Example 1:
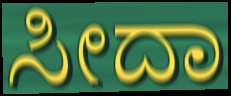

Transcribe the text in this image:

ಸೀದಾ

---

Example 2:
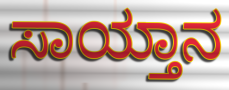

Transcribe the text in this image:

ಸಾಯ್ತಾನ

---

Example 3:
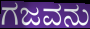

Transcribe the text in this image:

ಗಜವನು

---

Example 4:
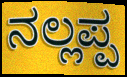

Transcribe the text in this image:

ನಲ್ಲಪ್ಪ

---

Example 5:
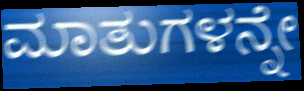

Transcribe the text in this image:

ಮಾತುಗಳನ್ನೇ